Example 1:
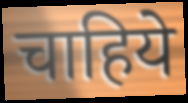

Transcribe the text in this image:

चाहिये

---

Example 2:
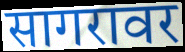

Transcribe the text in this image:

सागरावर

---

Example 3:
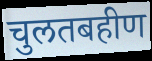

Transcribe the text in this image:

चुलतबहीण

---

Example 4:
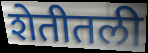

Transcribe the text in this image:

शेतीतली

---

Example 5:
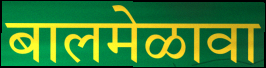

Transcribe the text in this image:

बालमेळावा